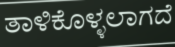
ತಾಳಿಕೊಳ್ಳಲಾಗದೆ